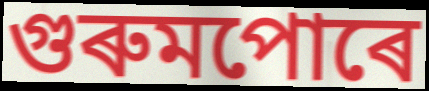
গুৰুমপোৰে